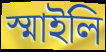
স্মাইলি